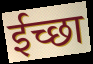
ईच्छा